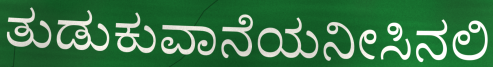
ತುಡುಕುವಾನೆಯನೀಸಿನಲಿ